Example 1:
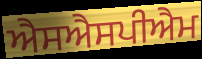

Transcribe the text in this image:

ਐਸਐਸਪੀਐਮ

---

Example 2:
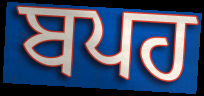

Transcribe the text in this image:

ਬਪਹ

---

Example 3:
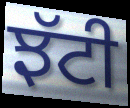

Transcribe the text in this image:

ਝੱਟੀ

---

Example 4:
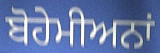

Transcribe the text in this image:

ਬੋਹੇਮੀਅਨਾਂ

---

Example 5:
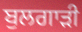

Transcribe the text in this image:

ਬੁਲਗਾੜੀ